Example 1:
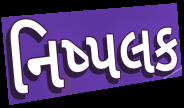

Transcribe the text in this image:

નિષ્પલક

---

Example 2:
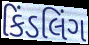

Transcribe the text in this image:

કિંડલિંગ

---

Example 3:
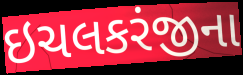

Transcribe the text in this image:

ઇચલકરંજીના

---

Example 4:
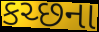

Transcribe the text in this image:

કચ્છના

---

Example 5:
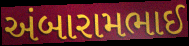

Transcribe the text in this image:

અંબારામભાઈ